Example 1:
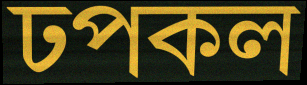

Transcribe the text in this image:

ঢপকল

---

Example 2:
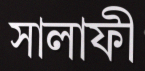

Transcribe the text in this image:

সালাফী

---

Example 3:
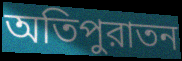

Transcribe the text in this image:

অতিপুরাতন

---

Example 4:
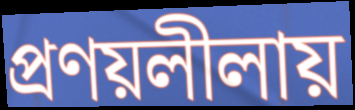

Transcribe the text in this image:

প্রণয়লীলায়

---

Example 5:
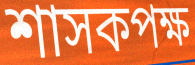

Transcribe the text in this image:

শাসকপক্ষ